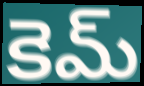
కెమ్